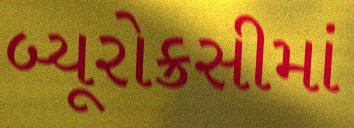
બ્યૂરોક્રસીમાં